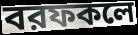
বরফকলে